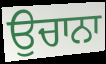
ਉਚਾਨਾ